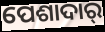
ପେଶାଦାର୍